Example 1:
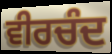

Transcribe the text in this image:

ਵੀਰਚੰਦ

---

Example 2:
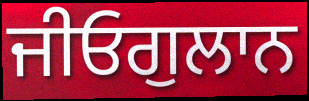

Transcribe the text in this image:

ਜੀਓਗੁਲਾਨ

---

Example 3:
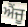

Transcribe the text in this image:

ਐਂਜੂ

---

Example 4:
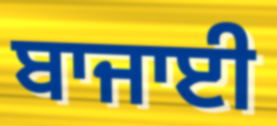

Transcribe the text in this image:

ਬਾਜਾਈ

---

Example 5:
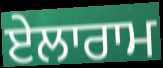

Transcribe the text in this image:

ਏਲਾਰਾਮ